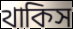
থাকিস